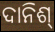
ଦାନିଶ୍